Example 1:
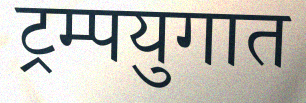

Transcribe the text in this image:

ट्रम्पयुगात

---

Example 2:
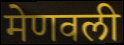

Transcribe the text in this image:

मेणवली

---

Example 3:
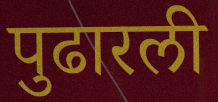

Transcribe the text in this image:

पुढारली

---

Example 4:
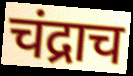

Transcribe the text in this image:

चंद्राच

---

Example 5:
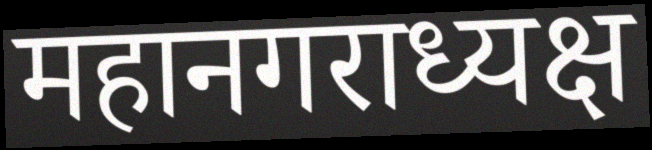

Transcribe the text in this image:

महानगराध्यक्ष